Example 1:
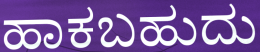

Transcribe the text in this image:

ಹಾಕಬಹುದು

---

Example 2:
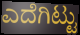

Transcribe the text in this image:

ಎದೆಗಿಟ್ಟು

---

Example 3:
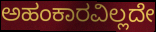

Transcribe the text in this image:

ಅಹಂಕಾರವಿಲ್ಲದೇ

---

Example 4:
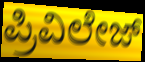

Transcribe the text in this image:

ಪ್ರಿವಿಲೇಜ್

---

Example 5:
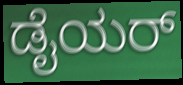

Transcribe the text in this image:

ಡೈಯರ್